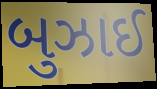
બુઝાઈ